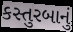
કસ્તુરબાનું